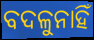
ବଦଳୁନାହିଁ